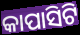
କାପାସିଟି